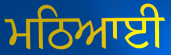
ਮਠਿਆਈ